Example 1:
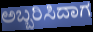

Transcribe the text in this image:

ಅಬ್ಬರಿಸಿದಾಗ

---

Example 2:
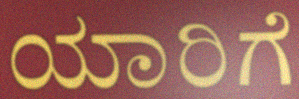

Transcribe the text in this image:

ಯಾರಿಗೆ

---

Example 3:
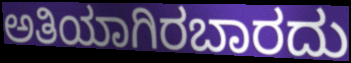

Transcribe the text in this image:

ಅತಿಯಾಗಿರಬಾರದು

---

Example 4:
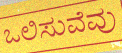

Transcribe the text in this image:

ಒಲಿಸುವೆವು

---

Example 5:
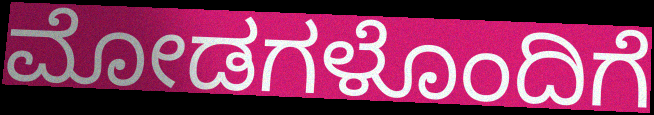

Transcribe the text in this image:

ಮೋಡಗಳೊಂದಿಗೆ